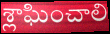
శ్లాఘించాలి